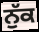
ਨੁੱਕ